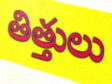
తిత్తులు